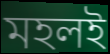
মহলই